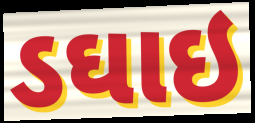
ડઘાઇ